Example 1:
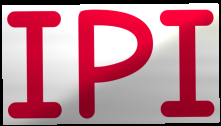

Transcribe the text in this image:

IPI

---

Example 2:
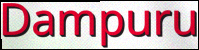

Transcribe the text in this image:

Dampuru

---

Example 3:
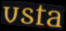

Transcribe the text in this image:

usta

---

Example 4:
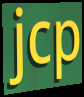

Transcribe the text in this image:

jcp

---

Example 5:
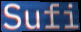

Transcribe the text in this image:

Sufi